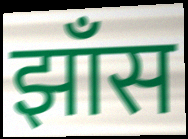
झाँस